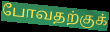
போவதற்குக்